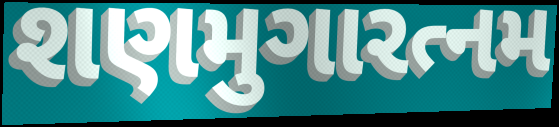
શણમુગારત્નમ